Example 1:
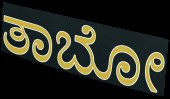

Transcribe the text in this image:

ತಾಬೋ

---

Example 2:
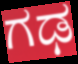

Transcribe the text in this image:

ಗಢ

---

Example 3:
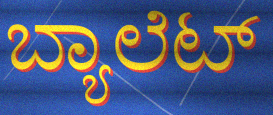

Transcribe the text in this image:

ಬ್ಯಾಲೆಟ್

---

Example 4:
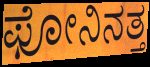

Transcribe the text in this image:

ಫೋನಿನತ್ತ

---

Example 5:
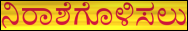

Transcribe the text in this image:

ನಿರಾಶೆಗೊಳಿಸಲು